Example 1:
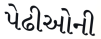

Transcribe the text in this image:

પેઢીઓની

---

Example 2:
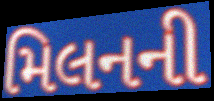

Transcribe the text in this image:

મિલનની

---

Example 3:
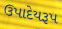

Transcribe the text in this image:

ઉપાદેયરૂપ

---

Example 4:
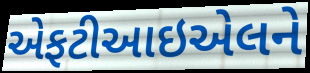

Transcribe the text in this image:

એફટીઆઇએલને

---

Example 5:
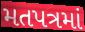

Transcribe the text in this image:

મતપત્રમાં